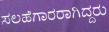
ಸಲಹೆಗಾರರಾಗಿದ್ದರು